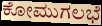
ಕೋಮುಗಲಭೆ